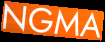
NGMA